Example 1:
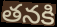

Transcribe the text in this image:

తనకి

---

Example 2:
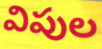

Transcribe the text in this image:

విపుల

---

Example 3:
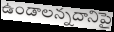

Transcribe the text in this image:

ఉండాలన్నదానిపై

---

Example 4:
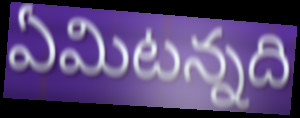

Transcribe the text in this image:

ఏమిటన్నది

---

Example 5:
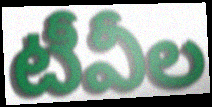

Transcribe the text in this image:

టీవీల